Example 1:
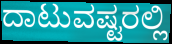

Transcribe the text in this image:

ದಾಟುವಷ್ಟರಲ್ಲಿ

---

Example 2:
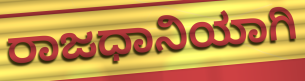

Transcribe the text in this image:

ರಾಜಧಾನಿಯಾಗಿ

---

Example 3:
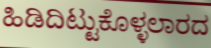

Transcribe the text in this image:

ಹಿಡಿದಿಟ್ಟುಕೊಳ್ಳಲಾರದ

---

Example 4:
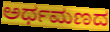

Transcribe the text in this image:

ಅರ್ಧಮಣದ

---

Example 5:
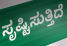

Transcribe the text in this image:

ಸೃಷ್ಟಿಸುತ್ತಿದೆ